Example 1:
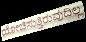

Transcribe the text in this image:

ಯೋಚಿಸುತ್ತಿರುವುದಿಲ್ಲ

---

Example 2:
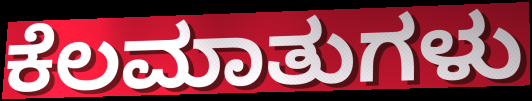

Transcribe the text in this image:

ಕೆಲಮಾತುಗಳು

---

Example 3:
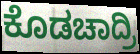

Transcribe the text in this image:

ಕೊಡಚಾದ್ರಿ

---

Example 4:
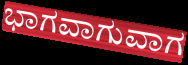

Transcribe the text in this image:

ಭಾಗವಾಗುವಾಗ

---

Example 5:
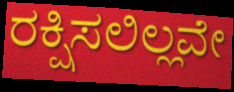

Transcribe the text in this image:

ರಕ್ಷಿಸಲಿಲ್ಲವೇ